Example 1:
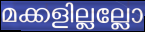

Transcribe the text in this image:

മക്കളില്ലല്ലോ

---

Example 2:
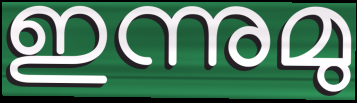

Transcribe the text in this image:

ഇന്നുമു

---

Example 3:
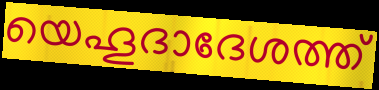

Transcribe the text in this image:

യെഹൂദാദേശത്ത്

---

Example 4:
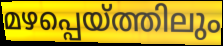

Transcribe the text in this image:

മഴപ്പെയ്ത്തിലും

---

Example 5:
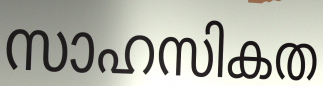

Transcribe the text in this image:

സാഹസികത